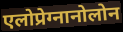
एलोप्रेग्नानोलोन